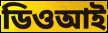
ডিওআই